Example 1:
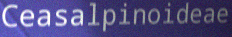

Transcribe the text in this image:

Ceasalpinoideae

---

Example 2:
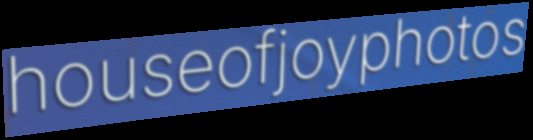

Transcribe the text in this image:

houseofjoyphotos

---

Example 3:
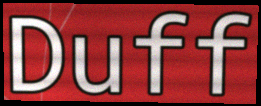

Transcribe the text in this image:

Duff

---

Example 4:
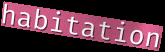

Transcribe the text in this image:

habitation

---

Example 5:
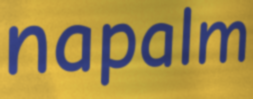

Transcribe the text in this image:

napalm